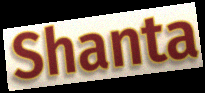
Shanta